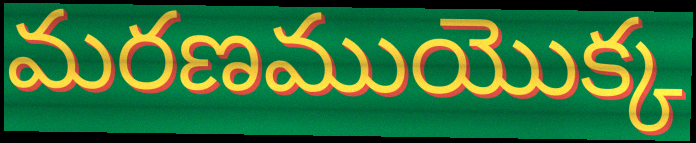
మరణముయొక్క